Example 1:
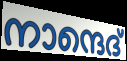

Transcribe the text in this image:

നാന്ദെദ്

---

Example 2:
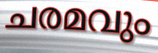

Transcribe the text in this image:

ചരമവും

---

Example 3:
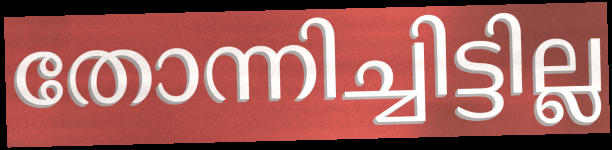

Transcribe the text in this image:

തോന്നിച്ചിട്ടില്ല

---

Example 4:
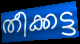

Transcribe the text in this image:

തീക്കട്ട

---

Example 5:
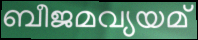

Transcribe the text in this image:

ബീജമവ്യയമ്